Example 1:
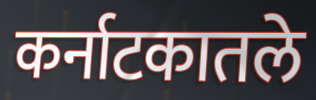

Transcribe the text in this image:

कर्नाटकातले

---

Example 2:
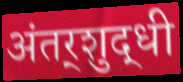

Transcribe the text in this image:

अंतर्शुद्धी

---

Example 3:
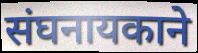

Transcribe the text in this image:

संघनायकाने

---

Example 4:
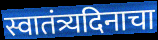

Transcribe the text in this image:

स्वातंत्र्यदिनाचा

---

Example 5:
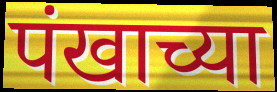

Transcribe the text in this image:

पंखाच्या